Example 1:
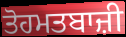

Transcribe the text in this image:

ਤੋਹਮਤਬਾਜ਼ੀ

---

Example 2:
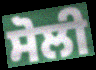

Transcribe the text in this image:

ਸੋਲੀ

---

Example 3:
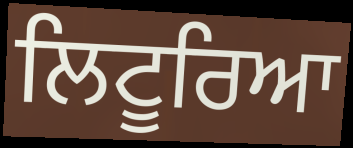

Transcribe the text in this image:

ਲਿਟੂਰਿਆ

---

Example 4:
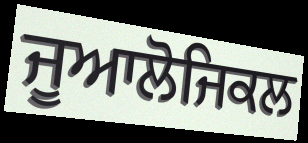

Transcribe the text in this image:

ਜੂਆਲੋਜਿਕਲ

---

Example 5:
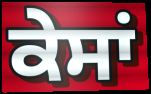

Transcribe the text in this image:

ਕੇਸਾਂ